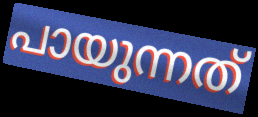
പായുന്നത്